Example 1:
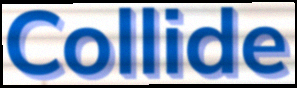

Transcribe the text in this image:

Collide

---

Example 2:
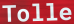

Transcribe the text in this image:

Tolle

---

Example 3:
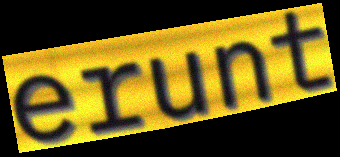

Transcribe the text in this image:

erunt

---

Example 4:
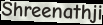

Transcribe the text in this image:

Shreenathji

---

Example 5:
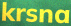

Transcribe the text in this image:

krsna